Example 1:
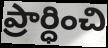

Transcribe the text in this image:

ప్రార్ధించి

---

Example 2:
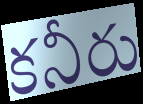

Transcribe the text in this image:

కనీరు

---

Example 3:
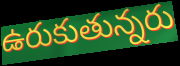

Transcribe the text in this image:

ఉరుకుతున్నరు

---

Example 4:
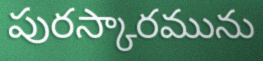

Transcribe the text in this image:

పురస్కారమును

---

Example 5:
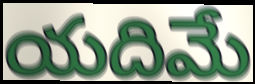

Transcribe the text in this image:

యదిమే